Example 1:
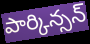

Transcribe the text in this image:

పార్కిన్సన్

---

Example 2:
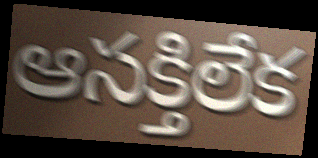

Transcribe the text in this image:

ఆసక్తిలేక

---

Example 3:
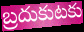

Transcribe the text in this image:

బ్రదుకుటకు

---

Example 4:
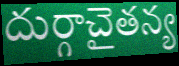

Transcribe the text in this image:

దుర్గాచైతన్య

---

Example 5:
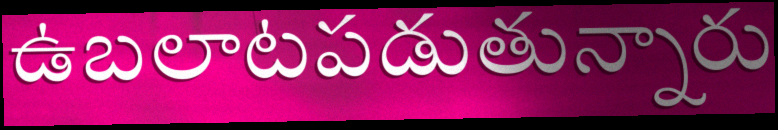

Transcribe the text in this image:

ఉబలాటపడుతున్నారు